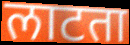
लाटता